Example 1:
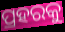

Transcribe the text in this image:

ପ୍ରହରକୁ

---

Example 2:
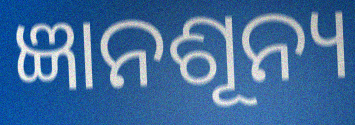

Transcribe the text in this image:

ଜ୍ଞାନଶୂନ୍ୟ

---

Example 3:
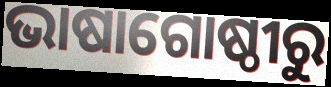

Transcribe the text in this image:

ଭାଷାଗୋଷ୍ଠୀରୁ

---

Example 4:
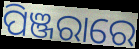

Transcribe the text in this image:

ପିଞ୍ଜରାରେ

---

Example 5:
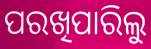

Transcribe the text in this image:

ପରଖିପାରିଲୁ